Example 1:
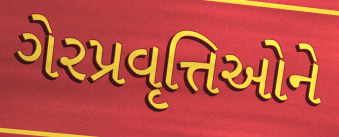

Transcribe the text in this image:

ગેરપ્રવૃત્તિઓને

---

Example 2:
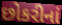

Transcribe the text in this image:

છોકરીનાં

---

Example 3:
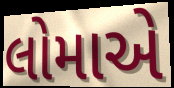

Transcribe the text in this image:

લોમાએ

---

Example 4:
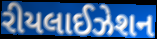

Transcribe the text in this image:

રીયલાઈઝેશન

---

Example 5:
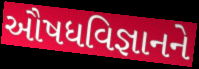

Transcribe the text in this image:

ઔષધવિજ્ઞાનને